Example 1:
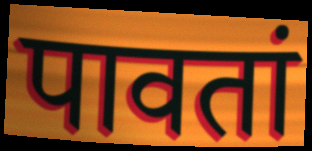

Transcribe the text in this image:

पावतां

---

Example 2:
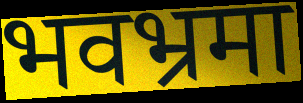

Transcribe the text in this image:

भवभ्रमा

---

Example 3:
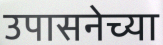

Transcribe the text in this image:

उपासनेच्या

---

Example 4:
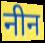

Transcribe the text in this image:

नीन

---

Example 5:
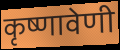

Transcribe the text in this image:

कृष्णावेणी